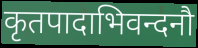
कृतपादाभिवन्दनौ